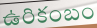
ఉరికంబం